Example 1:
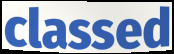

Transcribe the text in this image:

classed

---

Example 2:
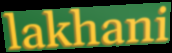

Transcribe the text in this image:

lakhani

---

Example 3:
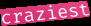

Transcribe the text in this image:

craziest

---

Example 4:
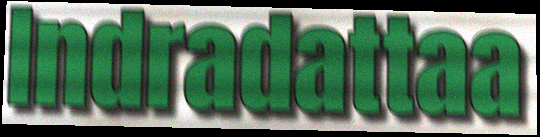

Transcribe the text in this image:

Indradattaa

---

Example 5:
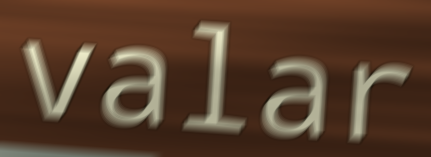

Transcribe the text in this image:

valar